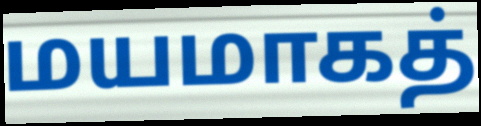
மயமாகத்